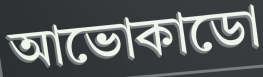
আভোকাডো